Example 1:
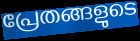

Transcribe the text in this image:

പ്രേതങ്ങളുടെ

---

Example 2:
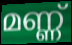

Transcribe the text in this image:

മണ്ണ്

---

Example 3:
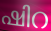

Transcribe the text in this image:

ഷിറ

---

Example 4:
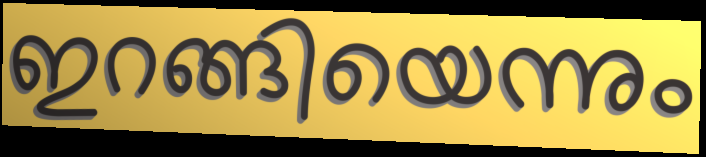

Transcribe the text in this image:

ഇറങ്ങിയെന്നും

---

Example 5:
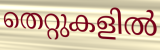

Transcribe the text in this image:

തെറ്റുകളിൽ